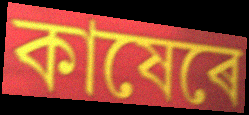
কাষেৰে